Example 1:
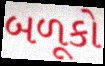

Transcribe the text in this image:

બળૂકો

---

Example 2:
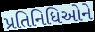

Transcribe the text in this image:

પ્રતિનિધિઓને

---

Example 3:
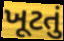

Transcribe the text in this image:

ખૂટતું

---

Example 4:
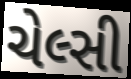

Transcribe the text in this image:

ચેલ્સી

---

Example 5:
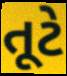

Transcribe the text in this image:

તૂટે